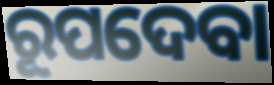
ରୂପଦେବା